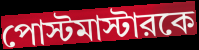
পোস্টমাস্টারকে